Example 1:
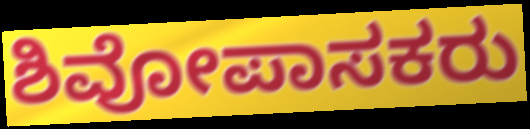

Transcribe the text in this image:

ಶಿವೋಪಾಸಕರು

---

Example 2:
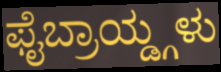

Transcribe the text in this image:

ಫೈಬ್ರಾಯ್ಡ್ಗಳು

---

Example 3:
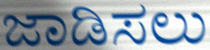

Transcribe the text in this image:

ಜಾಡಿಸಲು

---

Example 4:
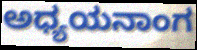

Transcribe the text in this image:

ಅಧ್ಯಯನಾಂಗ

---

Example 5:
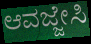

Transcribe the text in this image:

ಆವಜ್ಜೇಸಿ